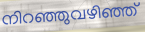
നിറഞ്ഞുവഴിഞ്ഞ്